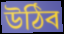
উঠিব